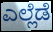
ಎಲ್ಲೆಡೆ